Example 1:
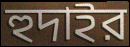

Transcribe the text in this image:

হুদাইর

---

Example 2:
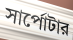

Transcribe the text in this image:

সার্পোটার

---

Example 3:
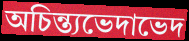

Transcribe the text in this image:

অচিন্ত্যভেদাভেদ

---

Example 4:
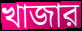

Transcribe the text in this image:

খাজার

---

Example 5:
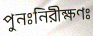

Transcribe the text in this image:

পুনঃনিরীক্ষণঃ